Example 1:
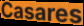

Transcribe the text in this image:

Casares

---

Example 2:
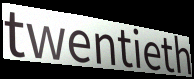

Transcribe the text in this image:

twentieth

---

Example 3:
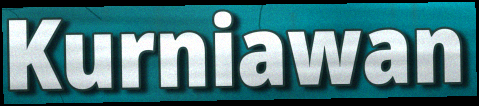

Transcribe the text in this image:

Kurniawan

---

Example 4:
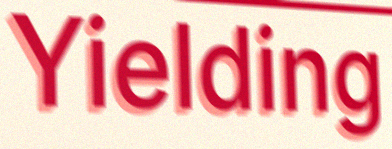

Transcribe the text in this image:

Yielding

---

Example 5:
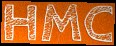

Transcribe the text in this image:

HMC